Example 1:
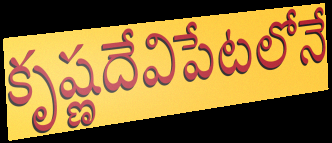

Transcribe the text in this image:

కృష్ణదేవిపేటలోనే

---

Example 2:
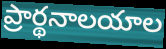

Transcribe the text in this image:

ప్రార్థనాలయాల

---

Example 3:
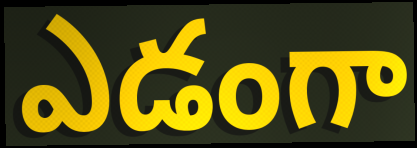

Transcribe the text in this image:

ఎడంగా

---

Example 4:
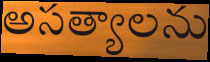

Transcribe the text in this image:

అసత్యాలను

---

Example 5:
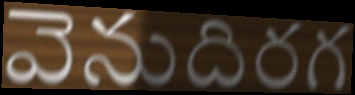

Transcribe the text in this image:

వెనుదిరగ